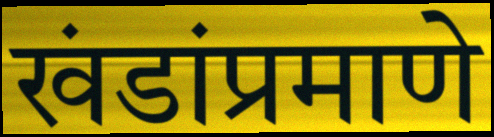
खंडांप्रमाणे